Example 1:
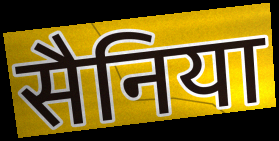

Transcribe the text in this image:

सैनिया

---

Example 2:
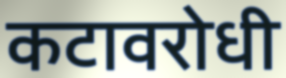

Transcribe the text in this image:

कटावरोधी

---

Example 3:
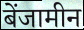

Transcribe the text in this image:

बेंजामीन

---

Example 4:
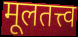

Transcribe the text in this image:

मूलतत्त्व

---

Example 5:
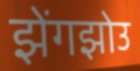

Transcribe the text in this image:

झेंगझोउ